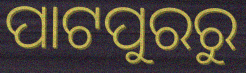
ପାଟପୁରରୁ